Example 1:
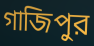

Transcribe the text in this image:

গাজিপুর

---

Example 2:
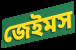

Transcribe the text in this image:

জেইমস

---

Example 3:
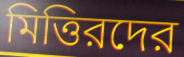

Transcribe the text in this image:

মিত্তিরদের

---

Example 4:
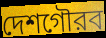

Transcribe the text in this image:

দেশগৌরব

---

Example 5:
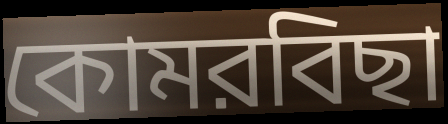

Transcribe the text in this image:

কোমরবিছা